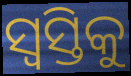
ସ୍ୱସ୍ତିକୁ